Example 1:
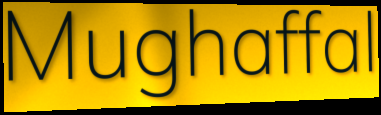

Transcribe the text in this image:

Mughaffal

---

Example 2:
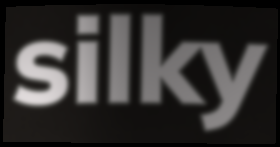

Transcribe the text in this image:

silky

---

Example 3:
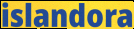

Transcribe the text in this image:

islandora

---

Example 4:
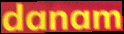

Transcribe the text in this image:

danam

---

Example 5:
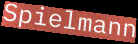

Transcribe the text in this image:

Spielmann